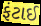
ફંટાઈ